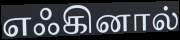
எஃகினால்